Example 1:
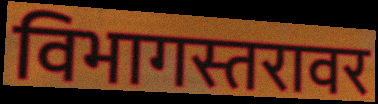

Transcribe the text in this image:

विभागस्तरावर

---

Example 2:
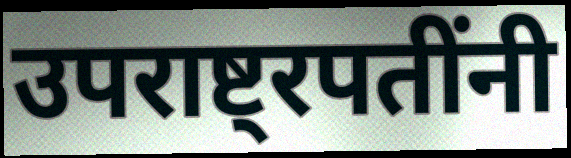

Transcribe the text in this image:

उपराष्ट्रपतींनी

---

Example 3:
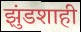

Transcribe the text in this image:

झुंडशाही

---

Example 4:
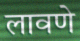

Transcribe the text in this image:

लावणे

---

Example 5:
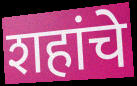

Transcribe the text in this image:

शहांचे